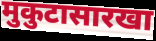
मुकुटासारखा